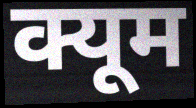
क्यूम